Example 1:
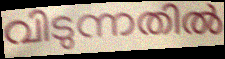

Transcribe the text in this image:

വിടുന്നതിൽ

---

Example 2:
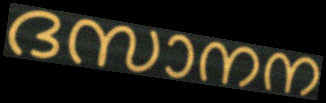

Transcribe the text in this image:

ദസാനന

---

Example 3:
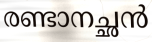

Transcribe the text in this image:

രണ്ടാനച്ഛൻ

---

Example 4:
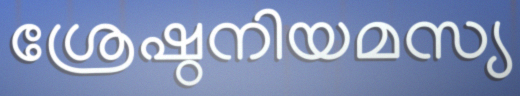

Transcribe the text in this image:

ശ്രേഷ്ഠനിയമസ്യ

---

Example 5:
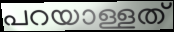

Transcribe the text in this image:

പറയാള്ളത്